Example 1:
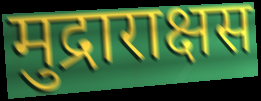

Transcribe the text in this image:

मुद्राराक्षस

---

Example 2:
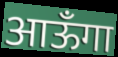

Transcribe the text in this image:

आऊँगा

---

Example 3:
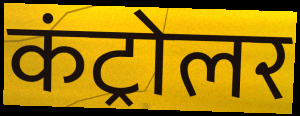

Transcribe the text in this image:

कंट्रोलर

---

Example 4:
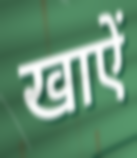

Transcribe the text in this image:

खाऐं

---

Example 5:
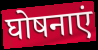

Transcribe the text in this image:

घोषनाएं